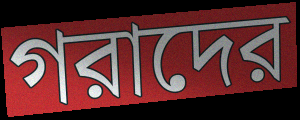
গরাদের